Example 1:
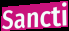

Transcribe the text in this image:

Sancti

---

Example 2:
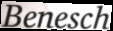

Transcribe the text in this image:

Benesch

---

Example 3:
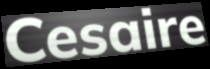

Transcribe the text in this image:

Cesaire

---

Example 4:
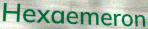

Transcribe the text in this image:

Hexaemeron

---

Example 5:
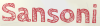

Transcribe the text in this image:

Sansoni